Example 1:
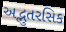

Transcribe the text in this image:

અદ્ભુતરસિક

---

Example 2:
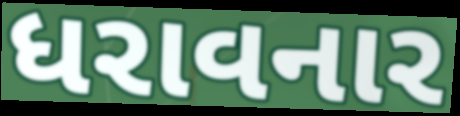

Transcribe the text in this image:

ધરાવનાર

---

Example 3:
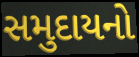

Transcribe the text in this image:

સમુદાયનો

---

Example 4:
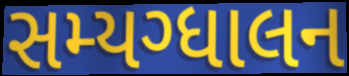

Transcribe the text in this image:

સમ્યગ્ધાલન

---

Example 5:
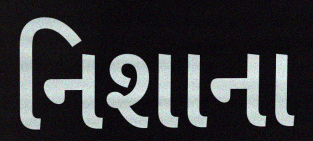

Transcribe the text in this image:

નિશાના